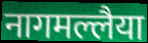
नागमल्लैया